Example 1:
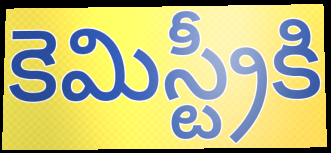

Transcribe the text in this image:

కెమిస్ట్రీకి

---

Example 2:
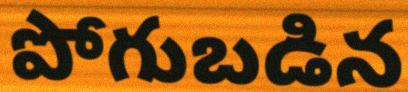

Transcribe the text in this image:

పోగుబడిన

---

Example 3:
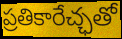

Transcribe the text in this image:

ప్రతికారేచ్ఛతో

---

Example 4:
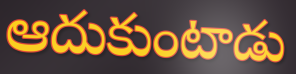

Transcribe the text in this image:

ఆదుకుంటాడు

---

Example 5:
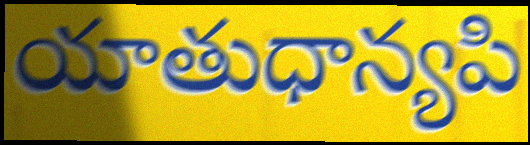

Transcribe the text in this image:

యాతుధాన్యపి